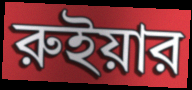
রুইয়ার